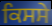
ਕਿਸਸੇ